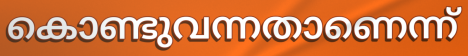
കൊണ്ടുവന്നതാണെന്ന്